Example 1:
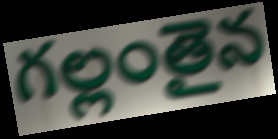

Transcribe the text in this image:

గల్లంతైన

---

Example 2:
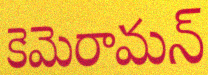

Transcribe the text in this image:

కెమెరామన్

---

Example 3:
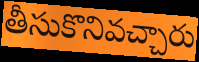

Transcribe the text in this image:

తీసుకొనివచ్చారు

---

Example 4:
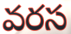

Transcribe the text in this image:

వరస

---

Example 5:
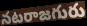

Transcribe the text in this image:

నటరాజగురు